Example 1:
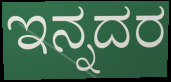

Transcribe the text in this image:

ಇನ್ನದರ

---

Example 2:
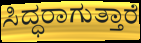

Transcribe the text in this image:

ಸಿದ್ಧರಾಗುತ್ತಾರೆ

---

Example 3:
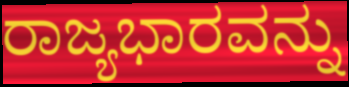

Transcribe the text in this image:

ರಾಜ್ಯಭಾರವನ್ನು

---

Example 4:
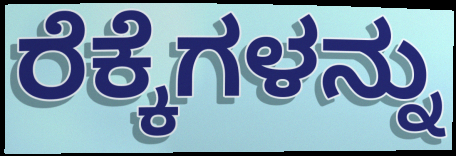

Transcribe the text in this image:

ರೆಕ್ಕೆಗಳನ್ನು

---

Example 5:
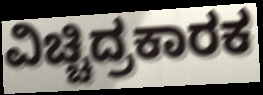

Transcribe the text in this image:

ವಿಚ್ಚಿದ್ರಕಾರಕ